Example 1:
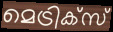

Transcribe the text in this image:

മെട്രിക്സ്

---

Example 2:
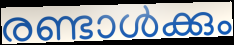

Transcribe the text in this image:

രണ്ടാൾക്കും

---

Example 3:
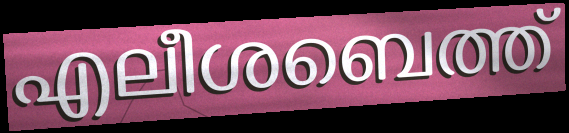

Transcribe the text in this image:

എലീശബെത്ത്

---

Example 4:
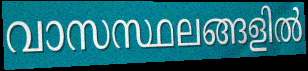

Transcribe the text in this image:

വാസസ്ഥലങ്ങളിൽ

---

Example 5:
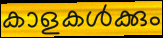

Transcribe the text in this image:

കാളകൾക്കും